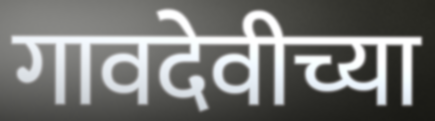
गावदेवीच्या